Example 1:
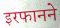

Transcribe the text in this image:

इरफानने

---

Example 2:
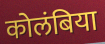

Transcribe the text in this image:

कोलंबिया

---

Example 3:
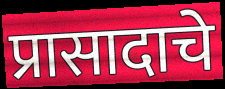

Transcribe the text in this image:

प्रासादाचे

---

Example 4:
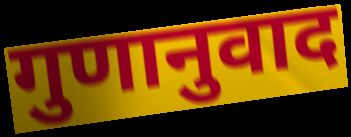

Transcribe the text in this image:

गुणानुवाद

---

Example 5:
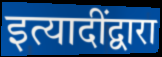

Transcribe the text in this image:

इत्यादींद्वारा